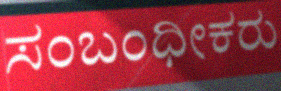
ಸಂಬಂಧೀಕರು